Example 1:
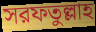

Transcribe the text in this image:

সরফতুল্লাহ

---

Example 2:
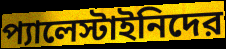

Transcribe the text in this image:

প্যালেস্টাইনিদের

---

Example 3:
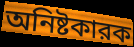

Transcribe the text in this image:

অনিষ্টকারক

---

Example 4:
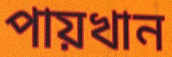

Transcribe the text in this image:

পায়খান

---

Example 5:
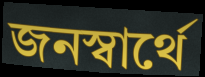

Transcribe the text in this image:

জনস্বার্থে